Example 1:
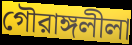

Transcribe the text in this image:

গৌরাঙ্গলীলা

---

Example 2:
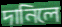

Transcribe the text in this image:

দানিলে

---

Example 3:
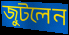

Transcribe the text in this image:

জুটলেন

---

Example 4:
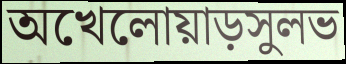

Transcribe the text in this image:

অখেলোয়াড়সুলভ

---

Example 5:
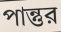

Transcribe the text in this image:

পান্তুর